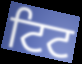
ਟਿਟ